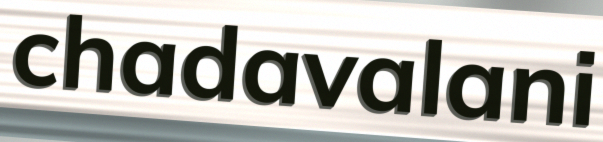
chadavalani